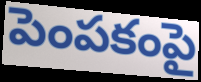
పెంపకంపై